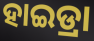
ହାଇଡ୍ରା